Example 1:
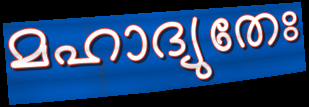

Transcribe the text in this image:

മഹാദ്യുതേഃ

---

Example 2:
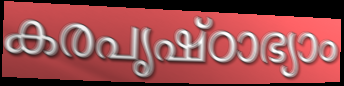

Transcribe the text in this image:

കരപൃഷ്ഠാഭ്യാം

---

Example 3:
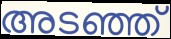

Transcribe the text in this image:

അടഞ്ഞ്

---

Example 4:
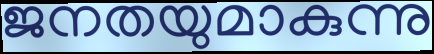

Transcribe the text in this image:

ജനതയുമാകുന്നു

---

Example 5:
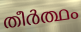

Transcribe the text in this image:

തീർത്ഥം